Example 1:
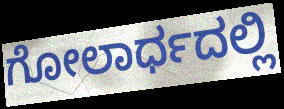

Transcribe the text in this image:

ಗೋಲಾರ್ಧದಲ್ಲಿ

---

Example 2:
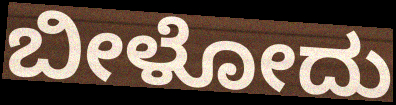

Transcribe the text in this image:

ಬೀಳೋದು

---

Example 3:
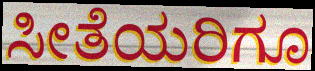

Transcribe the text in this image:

ಸೀತೆಯರಿಗೂ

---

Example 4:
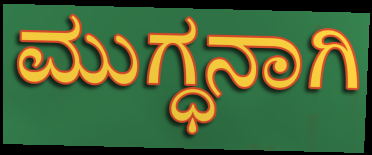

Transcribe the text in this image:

ಮುಗ್ಧನಾಗಿ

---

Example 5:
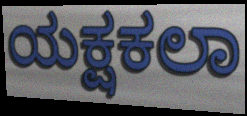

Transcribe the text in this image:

ಯಕ್ಷಕಲಾ